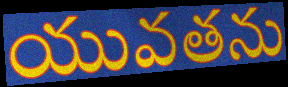
యువతను